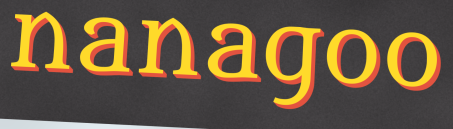
nanagoo